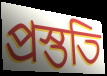
প্রস্ততি